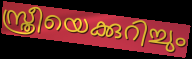
സ്ത്രീയെക്കുറിച്ചും